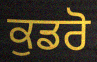
ਕੁਡਰੋ